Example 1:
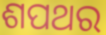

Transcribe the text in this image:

ଶପଥର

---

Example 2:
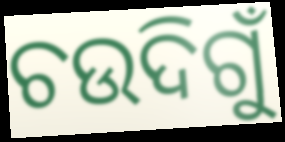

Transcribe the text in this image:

ଚଉଦିଗୁଁ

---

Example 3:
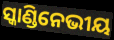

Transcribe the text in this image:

ସ୍କାଣ୍ଡିନେଭୀୟ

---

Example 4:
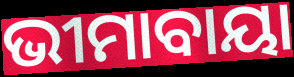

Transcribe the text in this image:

ଭୀମାବାୟା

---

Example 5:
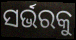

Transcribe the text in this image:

ସର୍ଭରକୁ